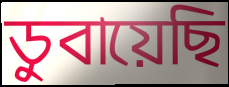
ডুবায়েছি